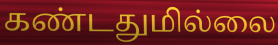
கண்டதுமில்லை